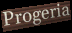
Progeria